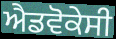
ਐਡਵੋਕੇਸੀ